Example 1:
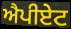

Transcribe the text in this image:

ਐਪੀਏਟ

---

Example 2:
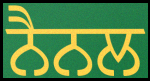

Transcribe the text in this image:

ਨੈਨਲ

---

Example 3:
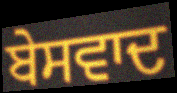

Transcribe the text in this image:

ਬੇਸਵਾਦ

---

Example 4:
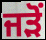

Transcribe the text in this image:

ਜੜੋਂ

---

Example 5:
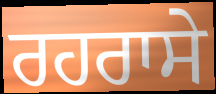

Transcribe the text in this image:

ਰਹਰਾਸੇ